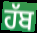
ਹੱਬ